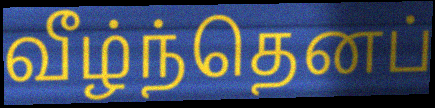
வீழ்ந்தெனப்